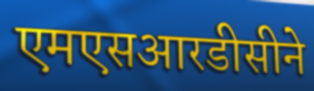
एमएसआरडीसीने